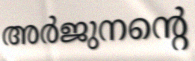
അർജുനന്റെ